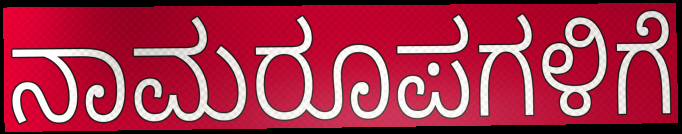
ನಾಮರೂಪಗಳಿಗೆ